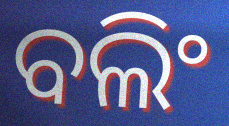
ବଲିଂ